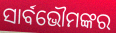
ସାର୍ବଭୌମଙ୍କର